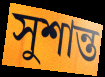
সুশান্ত